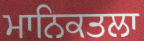
ਮਾਨਿਕਤਲਾ